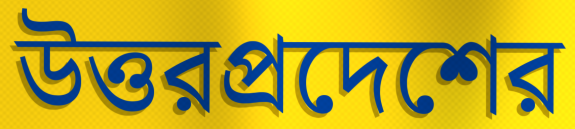
উত্তরপ্রদেশের